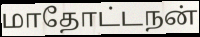
மாதோட்டநன்